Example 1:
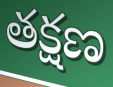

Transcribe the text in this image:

తక్షణ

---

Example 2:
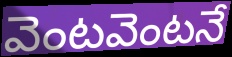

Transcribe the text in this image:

వెంటవెంటనే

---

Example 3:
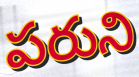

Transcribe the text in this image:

పరుని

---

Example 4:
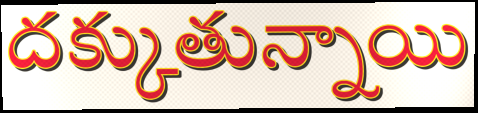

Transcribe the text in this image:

దక్కుతున్నాయి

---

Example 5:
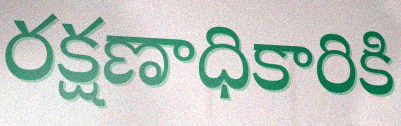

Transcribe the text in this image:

రక్షణాధికారికి